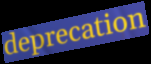
deprecation